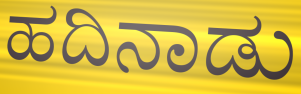
ಹದಿನಾಡು